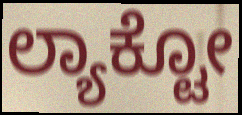
ಲ್ಯಾಕ್ಟೋ